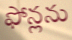
ఫోన్లను